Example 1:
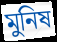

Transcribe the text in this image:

মুনিষ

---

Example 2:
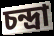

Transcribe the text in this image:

চন্দ্রা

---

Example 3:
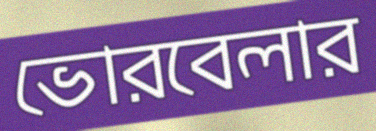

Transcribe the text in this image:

ভোরবেলার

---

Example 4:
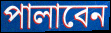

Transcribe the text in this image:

পালাবেন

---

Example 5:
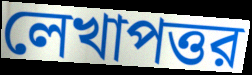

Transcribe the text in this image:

লেখাপত্তর